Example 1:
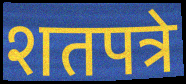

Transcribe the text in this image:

शतपत्रे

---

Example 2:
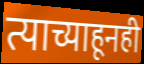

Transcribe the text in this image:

त्याच्याहूनही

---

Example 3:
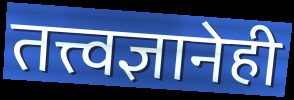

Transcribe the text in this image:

तत्त्वज्ञानेही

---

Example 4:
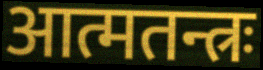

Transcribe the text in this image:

आत्मतन्त्रः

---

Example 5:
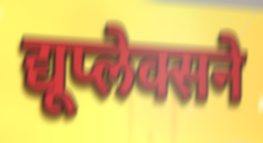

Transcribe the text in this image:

द्यूप्लेक्सने